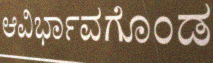
ಆವಿರ್ಭಾವಗೊಂಡ